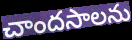
చాందసాలను